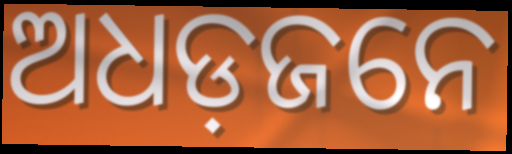
ଅଧଡ଼ଜନେ